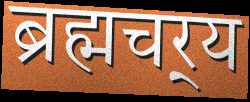
ब्रह्मचर्य